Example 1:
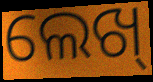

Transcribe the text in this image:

ଲେଖ୍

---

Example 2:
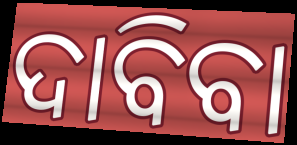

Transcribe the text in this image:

ଦାବିବା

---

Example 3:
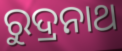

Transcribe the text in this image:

ରୁଦ୍ରନାଥ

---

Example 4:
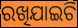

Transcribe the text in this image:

ରଖିଯାଇଚି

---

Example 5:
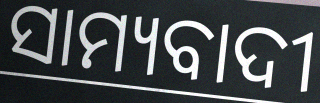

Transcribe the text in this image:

ସାମ୍ୟବାଦୀ